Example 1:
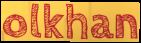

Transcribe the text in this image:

olkhan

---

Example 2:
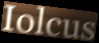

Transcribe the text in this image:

Iolcus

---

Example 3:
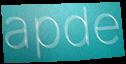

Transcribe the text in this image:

apde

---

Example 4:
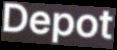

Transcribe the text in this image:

Depot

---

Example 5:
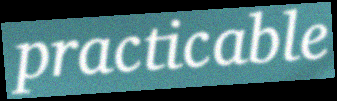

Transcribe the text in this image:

practicable